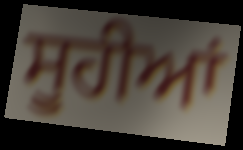
ਸੂਹੀਆਂ